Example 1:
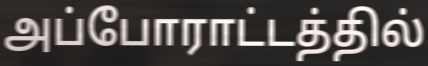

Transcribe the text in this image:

அப்போராட்டத்தில்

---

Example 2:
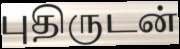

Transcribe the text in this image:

புதிருடன்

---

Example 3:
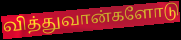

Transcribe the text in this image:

வித்துவான்களோடு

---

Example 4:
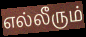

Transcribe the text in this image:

எல்லீரும்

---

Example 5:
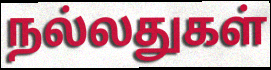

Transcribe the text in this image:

நல்லதுகள்